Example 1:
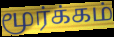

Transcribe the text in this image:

மூர்க்கம்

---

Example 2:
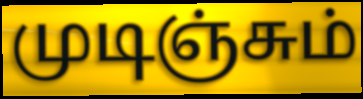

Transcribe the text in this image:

முடிஞ்சும்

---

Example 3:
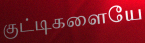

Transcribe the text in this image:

குட்டிகளையே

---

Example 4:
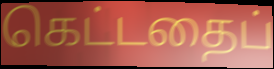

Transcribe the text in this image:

கெட்டதைப்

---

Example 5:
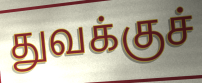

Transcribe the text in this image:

துவக்குச்